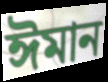
ঈমান